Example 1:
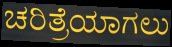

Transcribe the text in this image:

ಚರಿತ್ರೆಯಾಗಲು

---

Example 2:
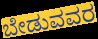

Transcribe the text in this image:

ಬೇಡುವವರ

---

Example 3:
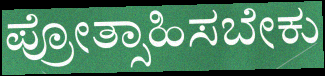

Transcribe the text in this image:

ಪ್ರೋತ್ಸಾಹಿಸಬೇಕು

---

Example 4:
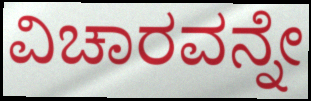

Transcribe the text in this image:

ವಿಚಾರವನ್ನೇ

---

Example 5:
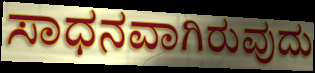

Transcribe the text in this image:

ಸಾಧನವಾಗಿರುವುದು